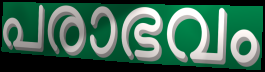
പരാഭവം